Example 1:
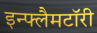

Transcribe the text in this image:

इन्फ्लैमटॉरी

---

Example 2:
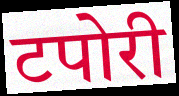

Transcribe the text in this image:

टपोरी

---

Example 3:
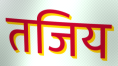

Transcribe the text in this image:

तजिय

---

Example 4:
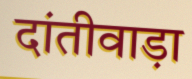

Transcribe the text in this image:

दांतीवाड़ा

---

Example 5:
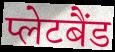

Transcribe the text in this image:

प्लेटबैंड